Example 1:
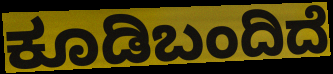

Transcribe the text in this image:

ಕೂಡಿಬಂದಿದೆ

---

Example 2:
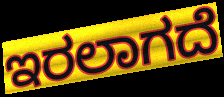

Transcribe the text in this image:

ಇರಲಾಗದೆ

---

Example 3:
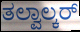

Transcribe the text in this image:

ತಲ್ವಾಲ್ಕರ್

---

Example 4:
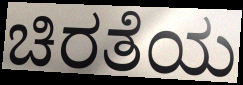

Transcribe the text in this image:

ಚಿರತೆಯ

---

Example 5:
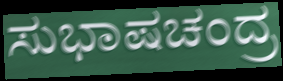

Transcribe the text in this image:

ಸುಭಾಷಚಂದ್ರ